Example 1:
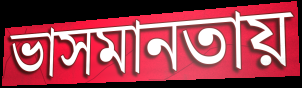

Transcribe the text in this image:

ভাসমানতায়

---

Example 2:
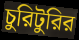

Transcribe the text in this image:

চুরিটুরির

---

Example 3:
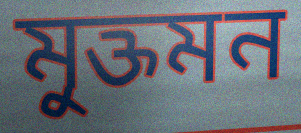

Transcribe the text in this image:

মুক্তমন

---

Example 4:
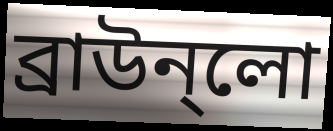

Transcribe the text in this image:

ব্রাউন্লো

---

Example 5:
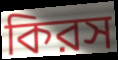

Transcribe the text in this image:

কিরস